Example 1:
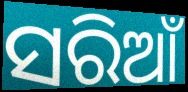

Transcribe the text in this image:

ସରିଆଁ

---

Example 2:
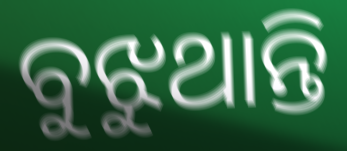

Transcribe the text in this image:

ବୁଝୁଥାନ୍ତି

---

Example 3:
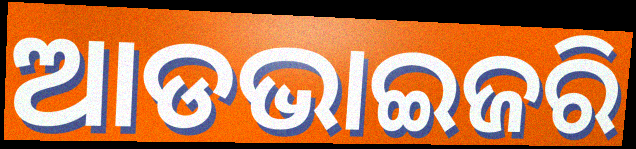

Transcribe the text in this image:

ଆଡଭାଇଜରି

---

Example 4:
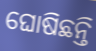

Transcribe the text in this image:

ଘୋଷିଛନ୍ତି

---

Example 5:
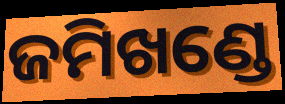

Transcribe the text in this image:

ଜମିଖଣ୍ଡେ